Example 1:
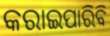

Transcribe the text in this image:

କରାଇପାରିବି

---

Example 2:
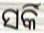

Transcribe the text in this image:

ସର୍କି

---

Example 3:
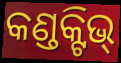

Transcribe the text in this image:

କଣ୍ଡକ୍ଟିଭ୍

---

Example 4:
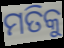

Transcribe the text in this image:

ମତିକୁ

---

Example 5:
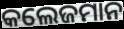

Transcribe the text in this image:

କଲେଜମାନ